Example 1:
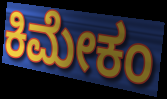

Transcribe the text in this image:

ಕಿಮೇಕಂ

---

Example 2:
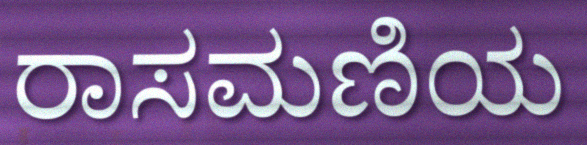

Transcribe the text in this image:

ರಾಸಮಣಿಯ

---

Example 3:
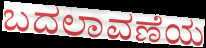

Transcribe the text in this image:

ಬದಲಾವಣೆಯ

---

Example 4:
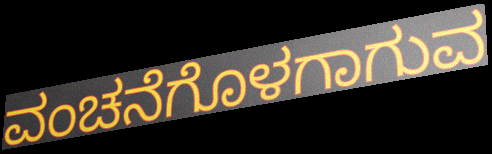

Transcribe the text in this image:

ವಂಚನೆಗೊಳಗಾಗುವ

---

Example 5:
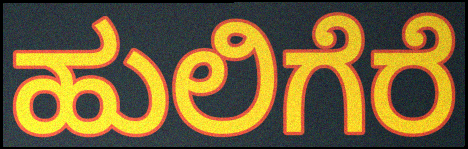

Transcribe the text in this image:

ಹುಲಿಗೆರೆ